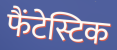
फैंटेस्टिक